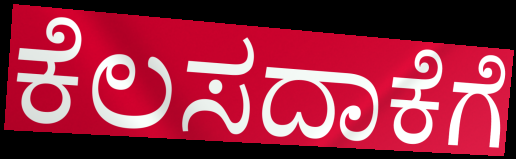
ಕೆಲಸದಾಕೆಗೆ